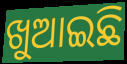
ଖୁଆଇଛି